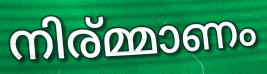
നിര്മ്മാണം